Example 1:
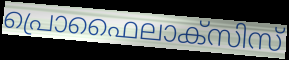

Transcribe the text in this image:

പ്രൊഫൈലാക്സിസ്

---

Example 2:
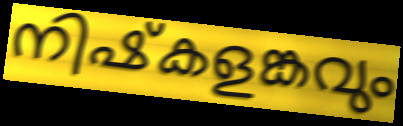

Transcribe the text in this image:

നിഷ്‌കളങ്കവും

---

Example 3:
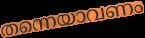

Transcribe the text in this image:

തന്നെയാവണം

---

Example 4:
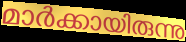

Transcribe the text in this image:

മാർക്കായിരുന്നു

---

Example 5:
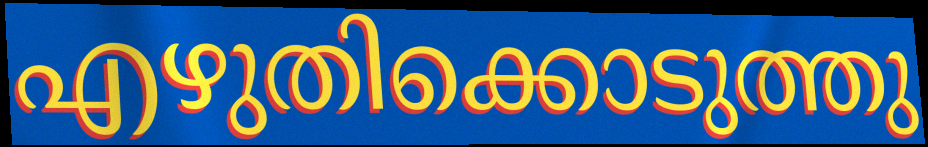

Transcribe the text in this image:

എഴുതിക്കൊടുത്തു